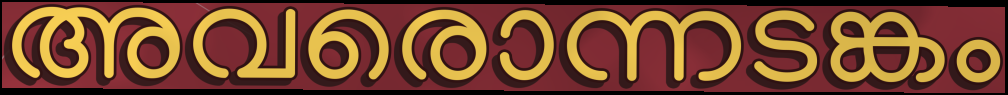
അവരൊന്നടങ്കം